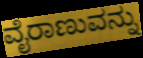
ವೈರಾಣುವನ್ನು